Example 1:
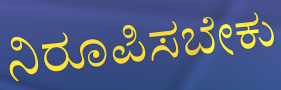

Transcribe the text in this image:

ನಿರೂಪಿಸಬೇಕು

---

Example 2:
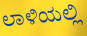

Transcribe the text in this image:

ಲಾಳಿಯಲ್ಲಿ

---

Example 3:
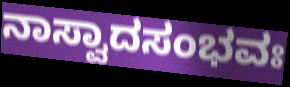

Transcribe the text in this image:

ನಾಸ್ವಾದಸಂಭವಃ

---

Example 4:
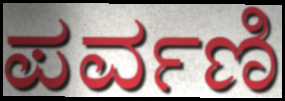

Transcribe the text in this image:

ಪರ್ವಣಿ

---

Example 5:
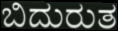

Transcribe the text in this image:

ಬಿದುರುತ